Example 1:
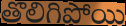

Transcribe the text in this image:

తొలిగిపోయి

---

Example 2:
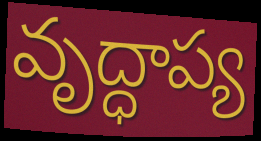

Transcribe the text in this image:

వృద్ధాప్య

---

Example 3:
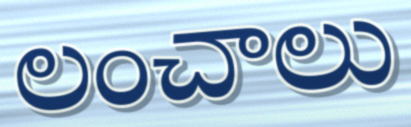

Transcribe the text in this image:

లంచాలు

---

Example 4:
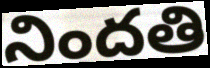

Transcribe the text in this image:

నిందతి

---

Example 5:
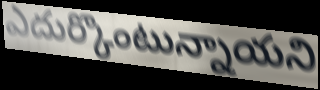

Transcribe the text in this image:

ఎదుర్కొంటున్నాయని